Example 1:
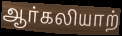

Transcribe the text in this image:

ஆர்கலியாற்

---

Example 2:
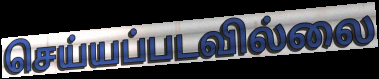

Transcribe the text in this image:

செய்யப்படவில்லை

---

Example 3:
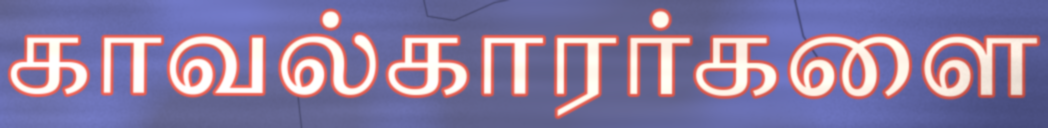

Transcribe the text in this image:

காவல்காரர்களை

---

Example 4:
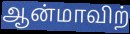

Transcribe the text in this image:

ஆன்மாவிற்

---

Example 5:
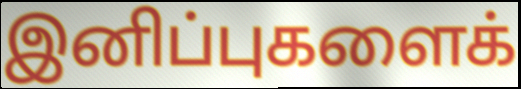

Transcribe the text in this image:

இனிப்புகளைக்